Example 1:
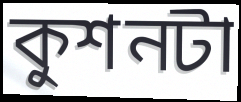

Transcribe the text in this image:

কুশনটা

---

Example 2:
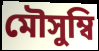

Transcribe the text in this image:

মৌসুম্বি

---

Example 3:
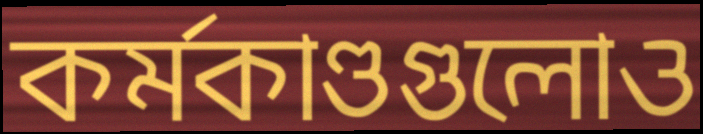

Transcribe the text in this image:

কর্মকাণ্ডগুলোও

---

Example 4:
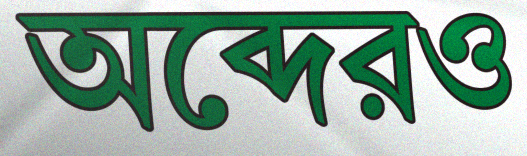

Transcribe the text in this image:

অব্দেরও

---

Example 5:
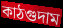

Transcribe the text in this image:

কাঠগুদাম